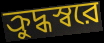
ক্রুদ্ধস্বরে